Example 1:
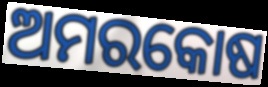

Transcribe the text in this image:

ଅମରକୋଷ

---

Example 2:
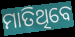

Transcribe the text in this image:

ମାତିଥିବେ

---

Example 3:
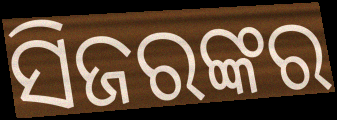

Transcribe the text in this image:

ସିଜରଙ୍କର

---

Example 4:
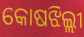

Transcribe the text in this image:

କୋଷଝିଲ୍ଲୀ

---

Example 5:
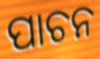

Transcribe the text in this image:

ପାଚନ